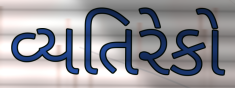
વ્યતિરેકો